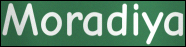
Moradiya